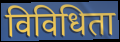
विविधिता